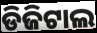
ଡିଜିଟାଲ